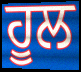
ਹੂਲ